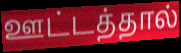
ஊட்டத்தால்